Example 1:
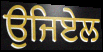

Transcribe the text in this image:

ਉਜਿਏਲ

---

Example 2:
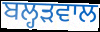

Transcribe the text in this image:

ਬਲ੍ਹੜਵਾਲ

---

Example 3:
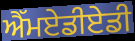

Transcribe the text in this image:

ਐੱਮਏਡੀਏਡੀ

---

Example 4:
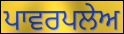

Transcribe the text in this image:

ਪਾਵਰਪਲੇਅ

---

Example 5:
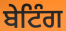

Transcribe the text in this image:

ਬੇਟਿੰਗ